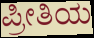
ಪ್ರೀತಿಯ